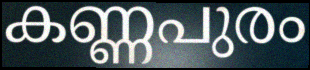
കണ്ണപുരം